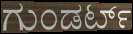
ಗುಂಡರ್ಟ್